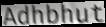
Adhbhut